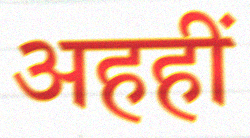
अहहीं